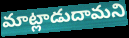
మాట్లాడుదామని